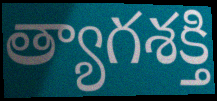
త్యాగశక్తి